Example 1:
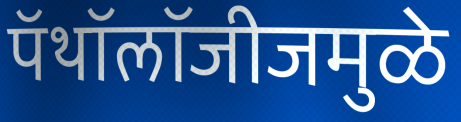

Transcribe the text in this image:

पॅथॉलॉजीजमुळे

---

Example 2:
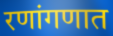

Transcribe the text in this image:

रणांगणात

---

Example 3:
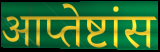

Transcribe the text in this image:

आप्तेष्टांस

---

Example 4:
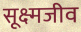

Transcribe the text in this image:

सूक्ष्मजीव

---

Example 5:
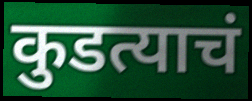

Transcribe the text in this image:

कुडत्याचं